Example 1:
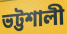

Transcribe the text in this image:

ভট্টশালী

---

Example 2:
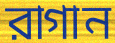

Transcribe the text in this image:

রাগান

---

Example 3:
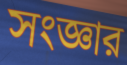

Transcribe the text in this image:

সংজ্ঞার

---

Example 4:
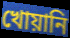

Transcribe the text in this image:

খোয়ানি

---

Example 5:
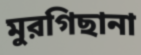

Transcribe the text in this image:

মুরগিছানা